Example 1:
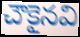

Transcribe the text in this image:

చౌకైనవి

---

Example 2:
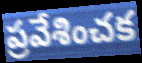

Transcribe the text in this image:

ప్రవేశించక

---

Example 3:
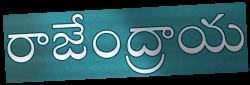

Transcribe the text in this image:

రాజేంద్రాయ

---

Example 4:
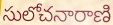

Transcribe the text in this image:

సులోచనారాణి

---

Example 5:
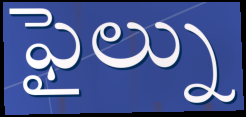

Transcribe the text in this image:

ఫైల్ను